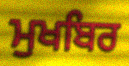
ਮੁਖਬਿਰ